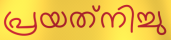
പ്രയത്‌നിച്ചു